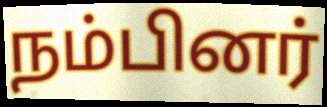
நம்பினர்